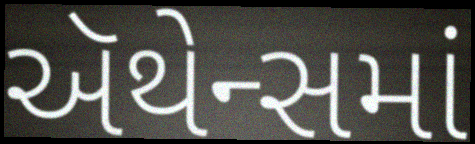
ઍથેન્સમાં